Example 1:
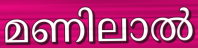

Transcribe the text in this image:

മണിലാൽ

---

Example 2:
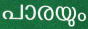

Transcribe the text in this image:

പാരയും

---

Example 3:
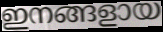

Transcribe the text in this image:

ഇനങ്ങളായ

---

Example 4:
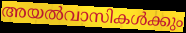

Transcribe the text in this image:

അയൽവാസികൾക്കും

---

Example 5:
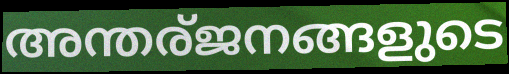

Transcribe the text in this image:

അന്തര്ജനങ്ങളുടെ